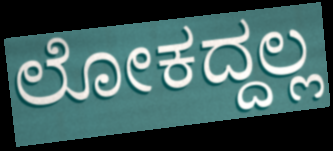
ಲೋಕದ್ದಲ್ಲ